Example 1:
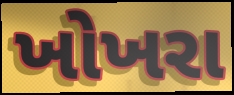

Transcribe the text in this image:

ખોખરા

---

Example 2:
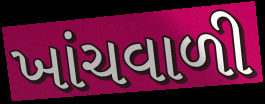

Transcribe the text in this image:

ખાંચવાળી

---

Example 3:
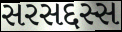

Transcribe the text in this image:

સરસદ્દસ્સ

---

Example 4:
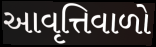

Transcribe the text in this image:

આવૃત્તિવાળો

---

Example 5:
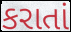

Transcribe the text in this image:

કરાતાં